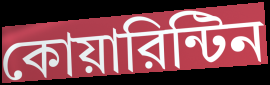
কোয়ারিন্টিন